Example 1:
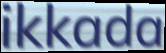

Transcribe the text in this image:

ikkada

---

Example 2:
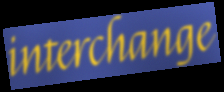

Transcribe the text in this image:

interchange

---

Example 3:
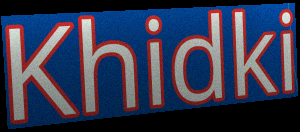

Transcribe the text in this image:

Khidki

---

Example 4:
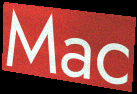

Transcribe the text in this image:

Mac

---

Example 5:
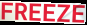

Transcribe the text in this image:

FREEZE